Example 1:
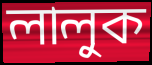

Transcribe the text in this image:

লালুক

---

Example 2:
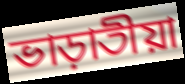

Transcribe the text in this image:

ভাড়াতীয়া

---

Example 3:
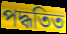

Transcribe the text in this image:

পদ্ধতিত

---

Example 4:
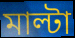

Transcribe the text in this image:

মাল্টা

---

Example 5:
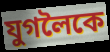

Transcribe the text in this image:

যুগলৈকে